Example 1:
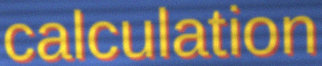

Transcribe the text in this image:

calculation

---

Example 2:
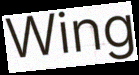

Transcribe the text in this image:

Wing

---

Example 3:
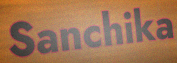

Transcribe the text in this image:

Sanchika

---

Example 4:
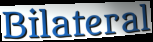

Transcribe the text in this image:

Bilateral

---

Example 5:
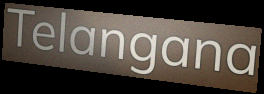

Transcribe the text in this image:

Telangana